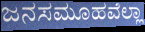
ಜನಸಮೂಹವೆಲ್ಲಾ